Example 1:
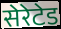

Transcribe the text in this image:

सेरेटेड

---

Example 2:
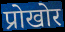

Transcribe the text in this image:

प्रोखोर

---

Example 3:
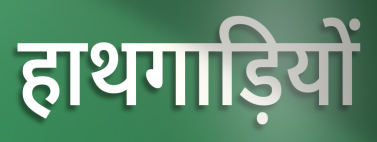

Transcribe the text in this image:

हाथगाड़ियों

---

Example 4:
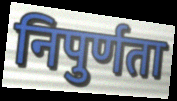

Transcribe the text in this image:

निपुर्णता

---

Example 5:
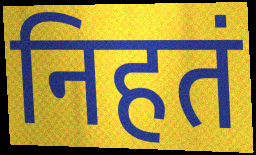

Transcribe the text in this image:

निहतं